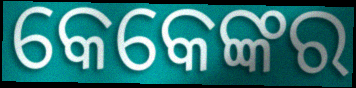
କେକେଙ୍କର